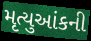
મૃત્યુઆંકની